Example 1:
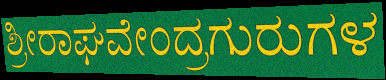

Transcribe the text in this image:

ಶ್ರೀರಾಘವೇಂದ್ರಗುರುಗಳ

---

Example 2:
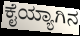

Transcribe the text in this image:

ಕೈಯ್ಯಾಗಿನ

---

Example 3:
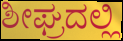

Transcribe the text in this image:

ಶೀಘ್ರದಲ್ಲಿ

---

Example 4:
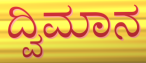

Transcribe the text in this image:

ದ್ವಿಮಾನ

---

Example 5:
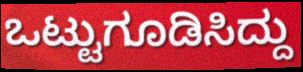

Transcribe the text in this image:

ಒಟ್ಟುಗೂಡಿಸಿದ್ದು